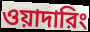
ওয়াদারিং